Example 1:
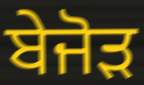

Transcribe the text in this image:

ਬੇਜੋੜ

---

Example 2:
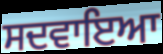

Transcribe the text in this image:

ਸਦਵਾਇਆ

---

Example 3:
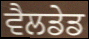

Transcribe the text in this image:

ਵੈਲਡੇਡ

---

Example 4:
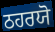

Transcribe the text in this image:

ਠਹਰਯੋ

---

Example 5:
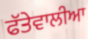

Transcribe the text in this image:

ਫੱਤੇਵਾਲੀਆ